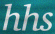
hhs